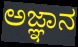
ಅಜ್ಞಾನ